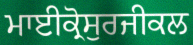
ਮਾਈਕ੍ਰੋਸੁਰਜੀਕਲ